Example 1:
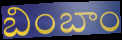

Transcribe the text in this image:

బింబాం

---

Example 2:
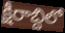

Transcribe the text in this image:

క్షీరాబ్దిలో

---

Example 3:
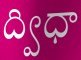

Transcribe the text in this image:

ద్విధా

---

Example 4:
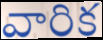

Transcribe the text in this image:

వారిక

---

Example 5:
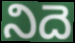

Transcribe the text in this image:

నిదె